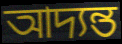
আদ্যন্ত